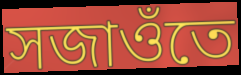
সজাওঁতে